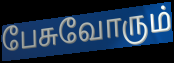
பேசுவோரும்